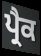
ਪ੍ਰੈਕ